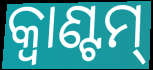
କ୍ଵାଣ୍ଟମ୍